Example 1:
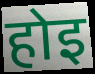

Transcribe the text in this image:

होइ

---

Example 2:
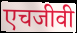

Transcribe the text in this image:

एचजीवी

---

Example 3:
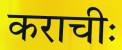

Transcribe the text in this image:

कराचीः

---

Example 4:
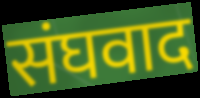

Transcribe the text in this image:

संघवाद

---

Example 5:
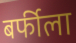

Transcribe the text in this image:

बर्फीला